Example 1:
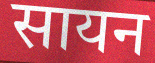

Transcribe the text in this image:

सायन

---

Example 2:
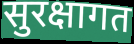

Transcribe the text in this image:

सुरक्षागत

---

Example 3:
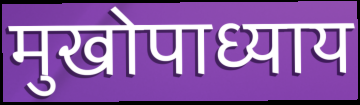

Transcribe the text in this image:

मुखोपाध्याय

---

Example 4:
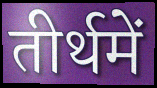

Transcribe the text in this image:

तीर्थमें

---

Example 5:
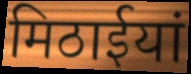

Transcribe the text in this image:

मिठाईयां